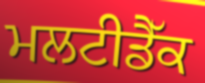
ਮਲਟੀਡੈੱਕ